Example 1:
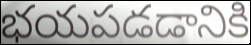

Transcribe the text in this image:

భయపడడానికి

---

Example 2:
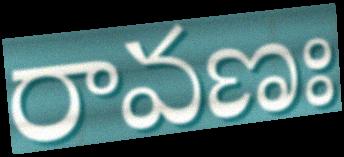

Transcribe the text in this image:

రావణః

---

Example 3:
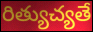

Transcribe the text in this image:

రిత్యుచ్యతే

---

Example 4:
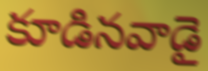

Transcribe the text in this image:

కూడినవాడై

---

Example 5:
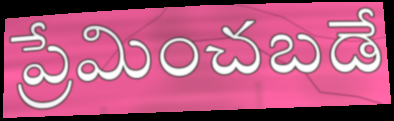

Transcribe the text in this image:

ప్రేమించబడే